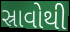
સ્રાવોથી